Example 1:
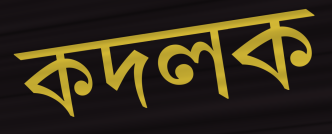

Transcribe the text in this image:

কদলক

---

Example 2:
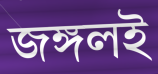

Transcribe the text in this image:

জঙ্গলই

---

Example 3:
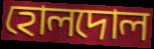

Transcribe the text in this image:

হোলদোল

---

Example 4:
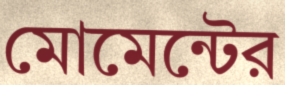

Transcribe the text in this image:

মোমেন্টের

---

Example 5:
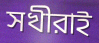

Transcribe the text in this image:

সখীরাই